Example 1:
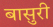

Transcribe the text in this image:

बासुरी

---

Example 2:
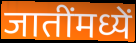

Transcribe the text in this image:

जातींमध्यें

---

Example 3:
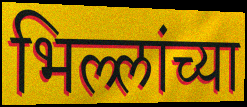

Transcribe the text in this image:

भिल्लांच्या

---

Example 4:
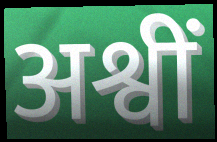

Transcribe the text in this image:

अश्वीं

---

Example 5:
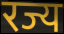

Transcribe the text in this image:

रज्य